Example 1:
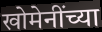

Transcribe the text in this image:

खोमेनींच्या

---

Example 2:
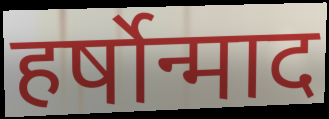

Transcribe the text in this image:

हर्षोन्माद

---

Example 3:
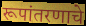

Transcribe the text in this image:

रूपांतरणाचे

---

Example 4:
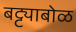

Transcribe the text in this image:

बट्ट्याबोळ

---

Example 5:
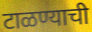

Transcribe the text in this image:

टाळण्याची